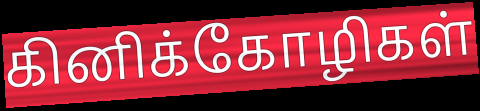
கினிக்கோழிகள்